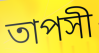
তাপসী